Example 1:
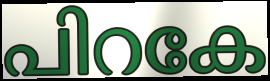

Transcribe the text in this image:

പിറകേ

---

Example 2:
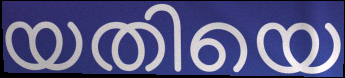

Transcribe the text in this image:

യതിയെ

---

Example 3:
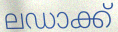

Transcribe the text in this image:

ലഡാക്ക്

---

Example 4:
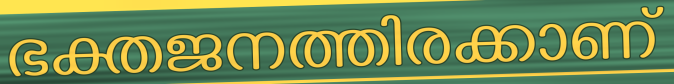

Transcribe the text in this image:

ഭക്തജനത്തിരക്കാണ്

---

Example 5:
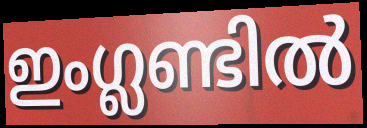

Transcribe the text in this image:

ഇംഗ്ലണ്ടിൽ